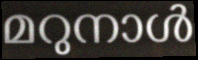
മറുനാൾ